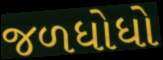
જળધોધો